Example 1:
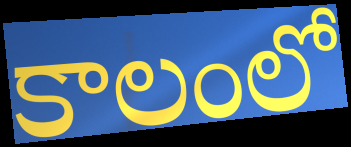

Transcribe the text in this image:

కాలంలో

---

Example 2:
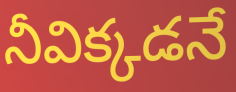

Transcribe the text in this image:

నీవిక్కడనే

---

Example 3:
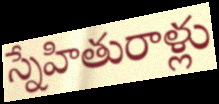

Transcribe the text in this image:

స్నేహితురాళ్లు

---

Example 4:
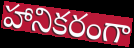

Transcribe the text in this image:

హానికరంగా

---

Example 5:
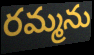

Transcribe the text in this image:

రమ్మను